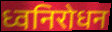
ध्वनिरोधन